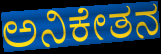
ಅನಿಕೇತನ